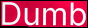
Dumb